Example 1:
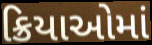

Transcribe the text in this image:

ક્રિયાઓમાં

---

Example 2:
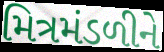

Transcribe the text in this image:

મિત્રમંડળીને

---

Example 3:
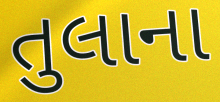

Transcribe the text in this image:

તુલાના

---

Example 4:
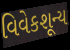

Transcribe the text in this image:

વિવેકશૂન્ય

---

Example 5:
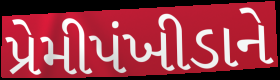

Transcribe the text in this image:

પ્રેમીપંખીડાને